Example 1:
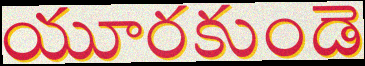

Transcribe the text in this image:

యూరకుండె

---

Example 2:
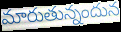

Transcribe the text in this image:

మారుతున్నందున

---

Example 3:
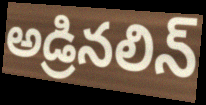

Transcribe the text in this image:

అడ్రినలిన్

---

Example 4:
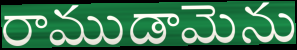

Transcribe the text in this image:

రాముడామెను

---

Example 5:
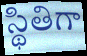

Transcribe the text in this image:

స్థితిగా